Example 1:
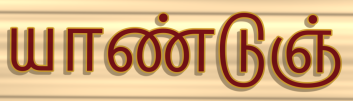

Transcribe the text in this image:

யாண்டுஞ்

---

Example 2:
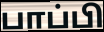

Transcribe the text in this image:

பாப்பி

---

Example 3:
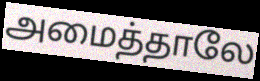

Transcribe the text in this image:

அமைத்தாலே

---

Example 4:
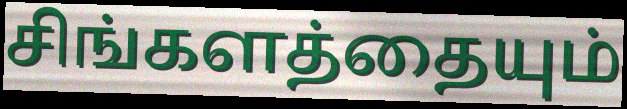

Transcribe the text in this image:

சிங்களத்தையும்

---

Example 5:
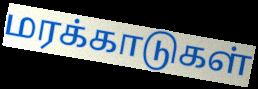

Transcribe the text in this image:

மரக்காடுகள்